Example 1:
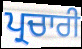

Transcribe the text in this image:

ਪ੍ਰਚਾਰੀ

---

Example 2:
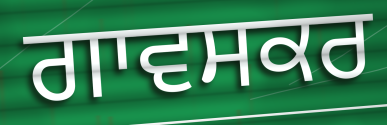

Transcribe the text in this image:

ਗਾਵਸਕਰ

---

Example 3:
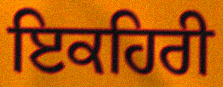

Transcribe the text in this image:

ਇਕਹਿਰੀ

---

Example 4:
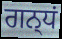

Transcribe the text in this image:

ਗਨ੍ਧਂ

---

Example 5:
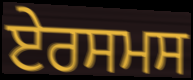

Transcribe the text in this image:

ਏਰਸਮਸ